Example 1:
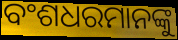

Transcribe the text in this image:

ବଂଶଧରମାନଙ୍କୁ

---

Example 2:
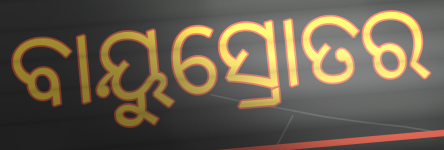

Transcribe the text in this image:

ବାୟୁସ୍ରୋତର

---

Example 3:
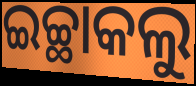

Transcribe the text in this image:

ଇଚ୍ଛାକଲୁ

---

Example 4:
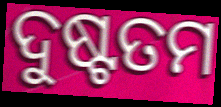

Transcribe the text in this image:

ଦୁଷ୍ଟତମ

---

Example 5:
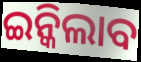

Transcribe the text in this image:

ଇନ୍କିଲାବ